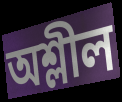
অশ্লীল